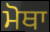
ਮੋਥਾ